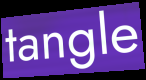
tangle